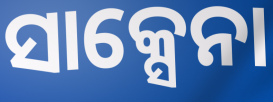
ସାକ୍ସେନା